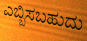
ಎಬ್ಬಿಸಬಹುದು